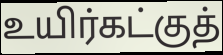
உயிர்கட்குத்